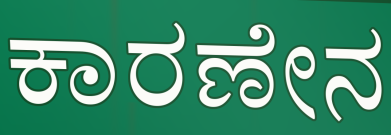
ಕಾರಣೇನ